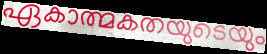
ഏകാത്മകതയുടെയും